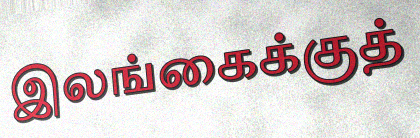
இலங்கைக்குத்